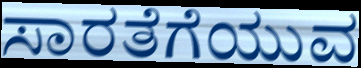
ಸಾರತೆಗೆಯುವ